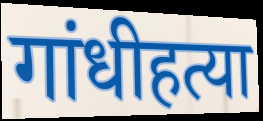
गांधीहत्या